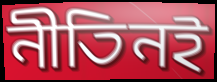
নীতিনই